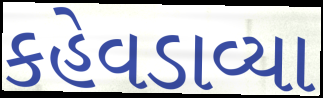
કહેવડાવ્યા